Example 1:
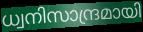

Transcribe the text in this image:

ധ്വനിസാന്ദ്രമായി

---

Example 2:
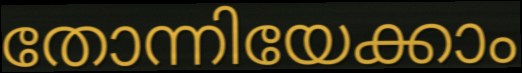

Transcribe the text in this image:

തോന്നിയേക്കാം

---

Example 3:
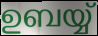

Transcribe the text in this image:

ഉബയ്യ്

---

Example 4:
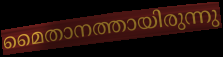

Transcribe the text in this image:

മൈതാനത്തായിരുന്നു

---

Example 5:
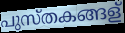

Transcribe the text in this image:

പുസ്തകങ്ങള്